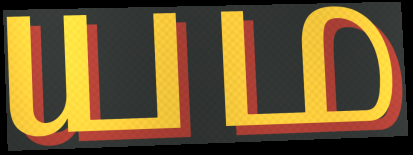
யம